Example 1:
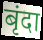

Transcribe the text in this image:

बृंदा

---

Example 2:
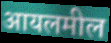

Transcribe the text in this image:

आयलमील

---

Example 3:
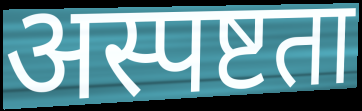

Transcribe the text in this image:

अस्पष्टता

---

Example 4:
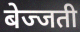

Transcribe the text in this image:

बेज्जती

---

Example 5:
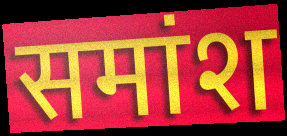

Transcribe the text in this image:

समांश